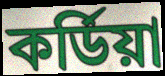
কর্ডিয়া